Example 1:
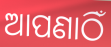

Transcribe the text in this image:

ଆପଣାଠିଁ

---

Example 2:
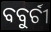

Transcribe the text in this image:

ବବୁର୍ଚୀ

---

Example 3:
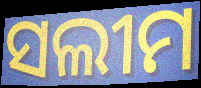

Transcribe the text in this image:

ସଲୀମ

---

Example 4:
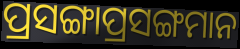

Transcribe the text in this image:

ପ୍ରସଙ୍ଗାପ୍ରସଙ୍ଗମାନ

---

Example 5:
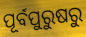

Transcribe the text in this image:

ପୂର୍ବପୁରୁଷରୁ